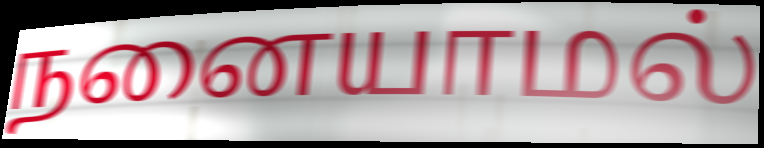
நனையாமல்